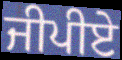
ਜੀਪੀਏ